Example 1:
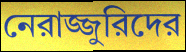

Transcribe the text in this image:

নেরাজ্জুরিদের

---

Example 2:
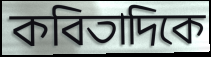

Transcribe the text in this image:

কবিতাদিকে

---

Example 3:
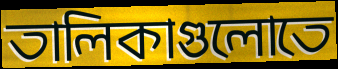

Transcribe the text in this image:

তালিকাগুলোতে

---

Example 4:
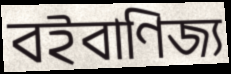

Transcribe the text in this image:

বইবাণিজ্য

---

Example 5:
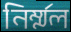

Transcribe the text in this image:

নির্ম্মল